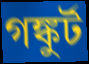
গঙ্কুর্ট